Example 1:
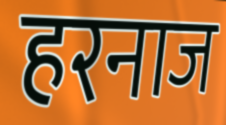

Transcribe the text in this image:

हरनाज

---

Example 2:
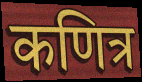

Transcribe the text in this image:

कणित्र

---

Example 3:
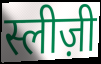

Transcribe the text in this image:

स्लीज़ी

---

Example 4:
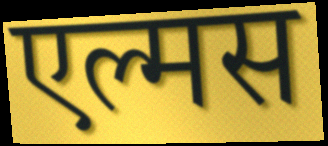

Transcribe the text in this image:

एल्मस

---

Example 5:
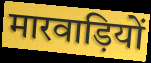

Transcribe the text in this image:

मारवाड़ियों